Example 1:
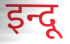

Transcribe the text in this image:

इन्दू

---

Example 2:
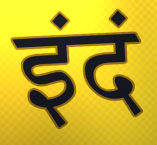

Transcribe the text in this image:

इंदं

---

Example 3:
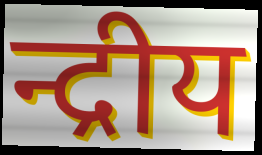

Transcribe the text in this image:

न्द्रीय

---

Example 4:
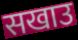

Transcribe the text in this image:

सखाउ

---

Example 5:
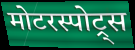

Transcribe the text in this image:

मोटरस्पोट्र्स